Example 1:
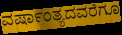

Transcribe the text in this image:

ವರ್ಷಾಂತ್ಯದವರೆಗೂ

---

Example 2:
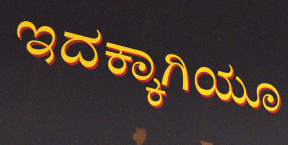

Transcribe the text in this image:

ಇದಕ್ಕಾಗಿಯೂ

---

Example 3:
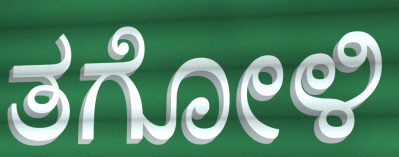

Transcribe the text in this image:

ತಗೋಳಿ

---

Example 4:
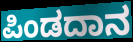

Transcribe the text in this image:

ಪಿಂಡದಾನ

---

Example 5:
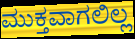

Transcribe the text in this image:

ಮುಕ್ತವಾಗಲಿಲ್ಲ